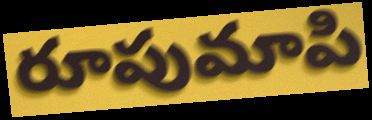
రూపుమాపి